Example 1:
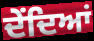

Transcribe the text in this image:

ਦੇਂਦਿਆਂ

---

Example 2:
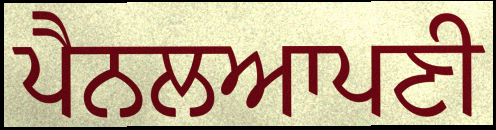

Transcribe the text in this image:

ਪੈਨਲਆਪਣੀ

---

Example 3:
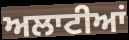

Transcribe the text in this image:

ਅਲਾਟੀਆਂ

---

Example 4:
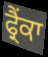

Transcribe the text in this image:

ਫ੍ਰੈਂਕਾ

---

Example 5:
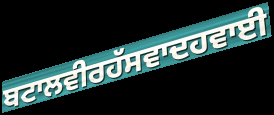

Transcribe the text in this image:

ਬਟਾਲਵੀਰਹੱਸਵਾਦਹਵਾਈ